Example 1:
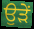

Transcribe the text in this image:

ਉੜੇਂ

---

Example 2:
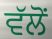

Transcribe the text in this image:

ਵੱਲੋਂ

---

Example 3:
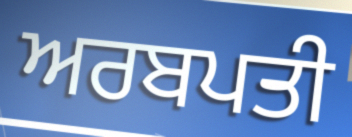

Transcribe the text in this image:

ਅਰਬਪਤੀ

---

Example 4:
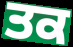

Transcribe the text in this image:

ਤਕ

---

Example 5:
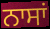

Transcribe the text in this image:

ਨਾਸਾਂ